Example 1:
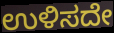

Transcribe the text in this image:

ಉಳಿಸದೇ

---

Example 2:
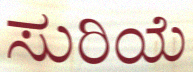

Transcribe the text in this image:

ಸುರಿಯೆ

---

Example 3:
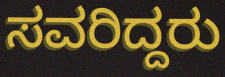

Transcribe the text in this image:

ಸವರಿದ್ದರು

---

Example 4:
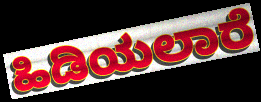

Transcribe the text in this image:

ಹಿಡಿಯಲಾರೆ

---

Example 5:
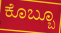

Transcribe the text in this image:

ಕೊಬ್ಬೂ